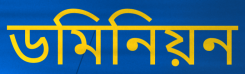
ডমিনিয়ন